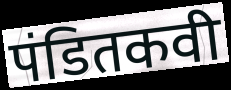
पंडितकवी